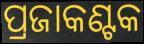
ପ୍ରଜାକଣ୍ଟକ